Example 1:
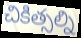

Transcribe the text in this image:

చికిత్సల్ని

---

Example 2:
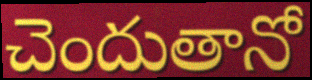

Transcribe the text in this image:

చెందుతానో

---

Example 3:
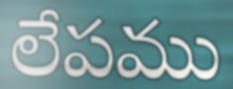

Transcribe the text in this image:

లేపము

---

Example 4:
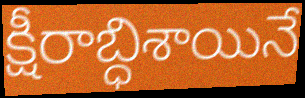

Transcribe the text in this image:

క్షీరాబ్ధిశాయినే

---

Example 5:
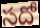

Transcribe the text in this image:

సదో